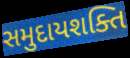
સમુદાયશક્તિ